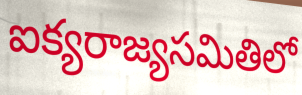
ఐక్యరాజ్యసమితిలో